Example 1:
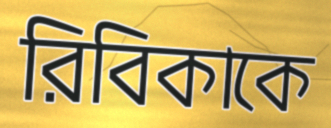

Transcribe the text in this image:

রিবিকাকে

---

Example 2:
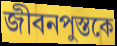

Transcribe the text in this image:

জীবনপুস্তকে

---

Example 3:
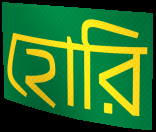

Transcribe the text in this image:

হোরি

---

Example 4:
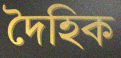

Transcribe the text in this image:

দৈহিক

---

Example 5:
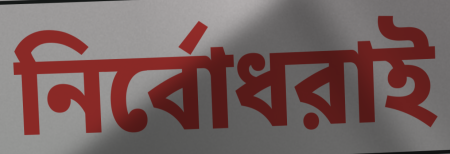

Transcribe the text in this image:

নির্বোধরাই